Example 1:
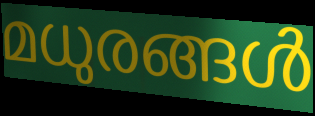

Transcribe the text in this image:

മധുരങ്ങൾ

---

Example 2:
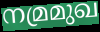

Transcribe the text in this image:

നമ്രമുഖ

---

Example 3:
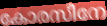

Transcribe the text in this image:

കോരസീനേ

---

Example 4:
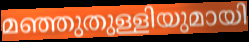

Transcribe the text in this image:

മഞ്ഞുതുള്ളിയുമായി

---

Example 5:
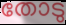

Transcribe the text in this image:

തോടു